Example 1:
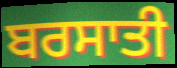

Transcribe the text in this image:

ਬਰਸਾਤੀ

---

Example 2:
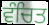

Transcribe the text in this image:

ਵੰਚਿਤ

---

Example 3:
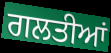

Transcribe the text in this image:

ਗਲਤੀਆਂ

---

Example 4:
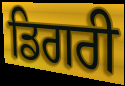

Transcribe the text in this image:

ਡਿਗਰੀ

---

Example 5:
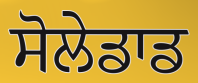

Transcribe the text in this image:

ਸੋਲੇਡਾਡ